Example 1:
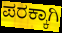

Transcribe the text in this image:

ಪರಕ್ಕಾಗಿ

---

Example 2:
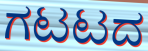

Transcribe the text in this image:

ಗಟಟದ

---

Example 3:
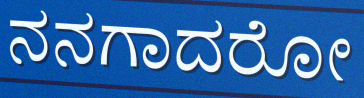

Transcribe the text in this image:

ನನಗಾದರೋ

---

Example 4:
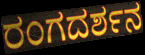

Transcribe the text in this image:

ರಂಗದರ್ಶನ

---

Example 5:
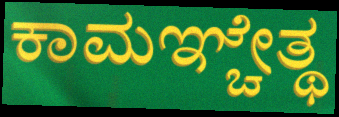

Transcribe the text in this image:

ಕಾಮಞ್ಚೇತ್ಥ